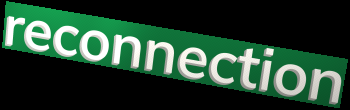
reconnection